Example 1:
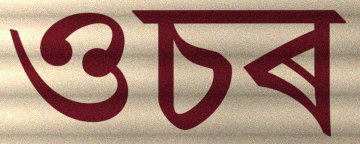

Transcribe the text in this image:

ওচৰ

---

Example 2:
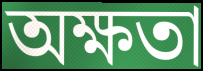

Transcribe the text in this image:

অক্ষতা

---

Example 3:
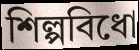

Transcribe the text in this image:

শিল্পবিধো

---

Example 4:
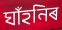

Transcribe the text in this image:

ঘাঁহনিৰ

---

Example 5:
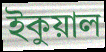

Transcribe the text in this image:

ইকুয়াল